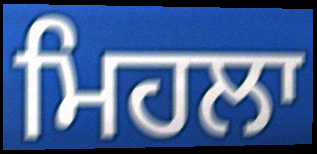
ਮਿਹਲਾ